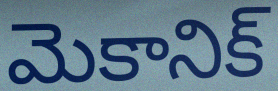
మెకానిక్